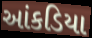
આંકડિયા